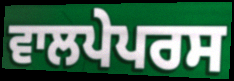
ਵਾਲਪੇਪਰਸ